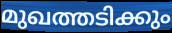
മുഖത്തടിക്കും